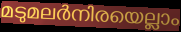
മടുമലർനിരയെല്ലാം